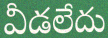
వీడలేదు